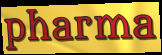
pharma